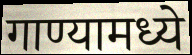
गाण्यामध्ये